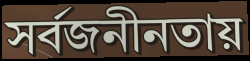
সর্বজনীনতায়